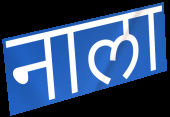
नाला